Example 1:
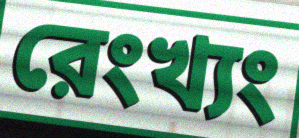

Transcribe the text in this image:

রেংখ্যং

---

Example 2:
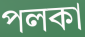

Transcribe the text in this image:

পলকা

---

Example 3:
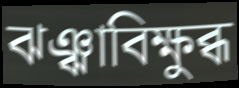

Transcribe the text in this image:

ঝঞ্ঝাবিক্ষুব্ধ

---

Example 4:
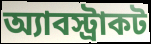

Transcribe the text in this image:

অ্যাবস্ট্রাকট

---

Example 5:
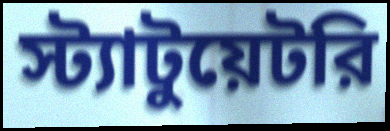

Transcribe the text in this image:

স্ট্যাটুয়েটরি